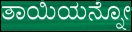
ತಾಯಿಯನ್ನೋ